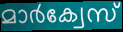
മാർക്വേസ്